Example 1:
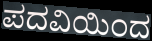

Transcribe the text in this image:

ಪದವಿಯಿಂದ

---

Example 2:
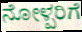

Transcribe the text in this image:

ನೋಳ್ಪರಿಗೆ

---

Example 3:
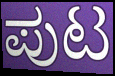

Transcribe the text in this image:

ಪುಟ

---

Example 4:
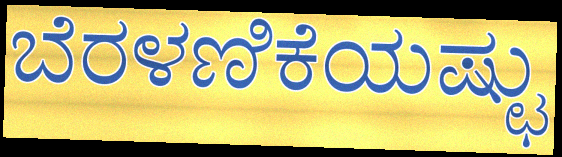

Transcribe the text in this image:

ಬೆರಳಣಿಕೆಯಷ್ಟು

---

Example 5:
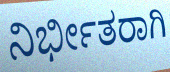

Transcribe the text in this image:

ನಿರ್ಭೀತರಾಗಿ